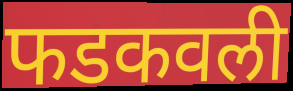
फडकवली